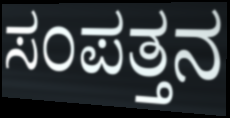
ಸಂಪತ್ತನ